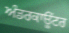
ਅੰਡਰਕਾਊਂਟਰ